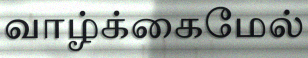
வாழ்க்கைமேல்